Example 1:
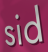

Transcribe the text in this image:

sid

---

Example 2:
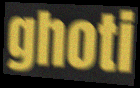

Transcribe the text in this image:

ghoti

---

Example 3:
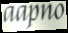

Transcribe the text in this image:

aapno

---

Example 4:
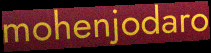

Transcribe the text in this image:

mohenjodaro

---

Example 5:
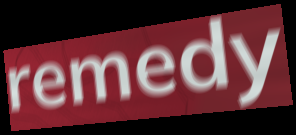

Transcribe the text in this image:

remedy